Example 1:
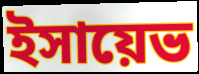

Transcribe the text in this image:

ইসায়েভ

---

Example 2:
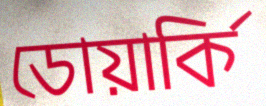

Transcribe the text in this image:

ডোয়ার্কি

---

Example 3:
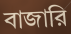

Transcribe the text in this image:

বাজারি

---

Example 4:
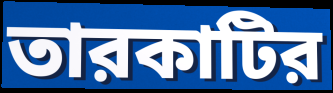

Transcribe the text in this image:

তারকাটির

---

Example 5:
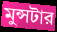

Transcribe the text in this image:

মুন্সটার